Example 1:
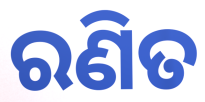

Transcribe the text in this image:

ରଣିତ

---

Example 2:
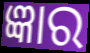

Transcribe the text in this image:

ଜ୍ଞାର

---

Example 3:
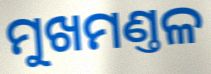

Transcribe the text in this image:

ମୁଖମଣ୍ତଳ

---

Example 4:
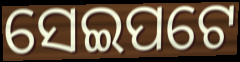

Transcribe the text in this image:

ସେଇପଟେ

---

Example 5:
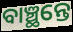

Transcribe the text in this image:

ବାଞ୍ଛନ୍ତେ